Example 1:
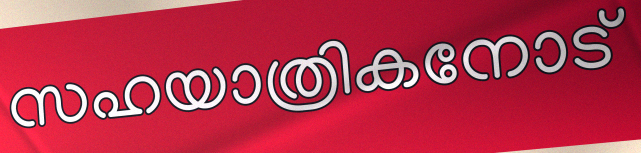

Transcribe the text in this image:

സഹയാത്രികനോട്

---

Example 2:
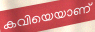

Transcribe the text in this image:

കവിയെയാണ്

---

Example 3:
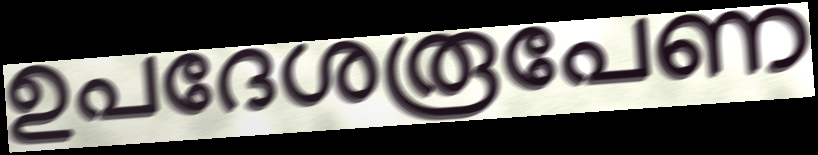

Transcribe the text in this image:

ഉപദേശരൂപേണ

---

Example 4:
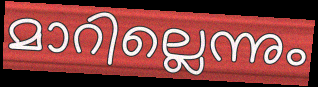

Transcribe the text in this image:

മാറില്ലെന്നും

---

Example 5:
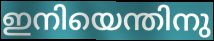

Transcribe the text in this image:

ഇനിയെന്തിനു